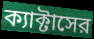
ক্যাক্টাসের